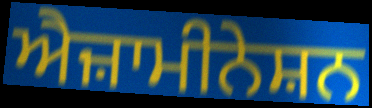
ਐਜ਼ਾਮੀਨੇਸ਼ਨ